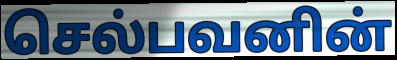
செல்பவனின்